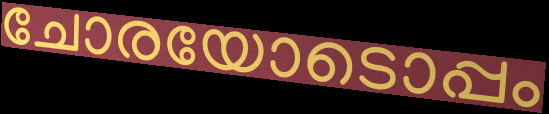
ചോരയോടൊപ്പം